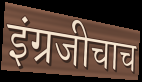
इंग्रजीचाच